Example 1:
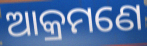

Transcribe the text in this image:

ଆକ୍ରମଣେ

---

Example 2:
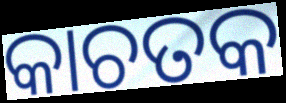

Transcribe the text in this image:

କାଚତକ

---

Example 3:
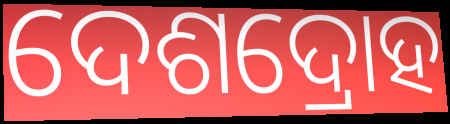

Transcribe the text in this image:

ଦେଶଦ୍ରୋହ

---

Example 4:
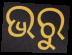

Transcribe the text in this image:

ଭରୁ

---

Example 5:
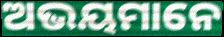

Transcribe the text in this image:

ଅଭୟମାନେ